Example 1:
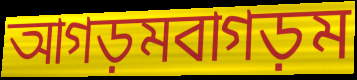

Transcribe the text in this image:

আগড়মবাগড়ম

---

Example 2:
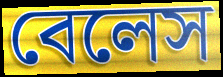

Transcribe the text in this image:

বেলেস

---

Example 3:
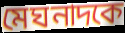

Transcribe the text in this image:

মেঘনাদকে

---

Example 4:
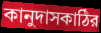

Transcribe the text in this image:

কানুদাসকাঠির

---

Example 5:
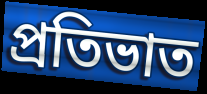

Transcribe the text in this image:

প্রতিভাত